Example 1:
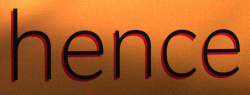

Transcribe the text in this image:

hence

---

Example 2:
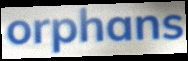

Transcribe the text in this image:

orphans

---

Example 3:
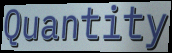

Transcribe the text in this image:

Quantity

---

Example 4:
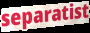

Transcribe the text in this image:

separatist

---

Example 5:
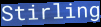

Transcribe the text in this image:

Stirling